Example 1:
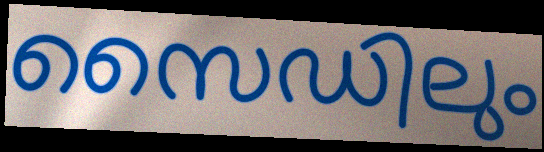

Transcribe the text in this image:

സൈഡിലും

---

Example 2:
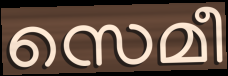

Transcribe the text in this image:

സെമീ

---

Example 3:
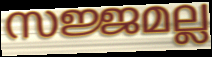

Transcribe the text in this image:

സജ്ജമല്ല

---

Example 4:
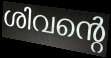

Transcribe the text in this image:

ശിവന്റെ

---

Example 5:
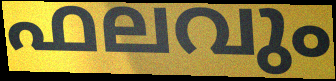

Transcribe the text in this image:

ഫലവും